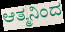
ಆತ್ಮನಿಂದ